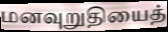
மனவுறுதியைத்